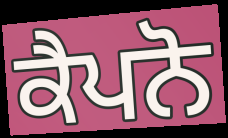
ਕੈਪਨੋ